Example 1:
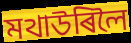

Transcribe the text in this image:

মথাউৰিলৈ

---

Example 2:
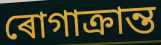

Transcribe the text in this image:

ৰোগাক্ৰান্ত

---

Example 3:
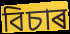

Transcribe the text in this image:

বিচাৰ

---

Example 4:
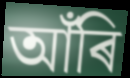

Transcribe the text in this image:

আঁৰি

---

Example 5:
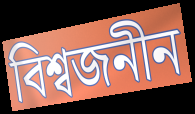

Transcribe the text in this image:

বিশ্বজনীন